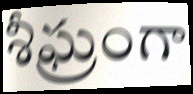
శీఘ్రంగా